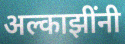
अल्काझींनी